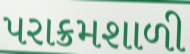
પરાક્રમશાળી